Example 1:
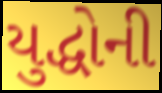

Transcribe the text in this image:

યુદ્ધોની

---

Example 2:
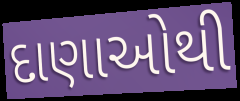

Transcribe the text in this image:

દાણાઓથી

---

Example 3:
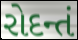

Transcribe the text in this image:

રોદન્તં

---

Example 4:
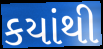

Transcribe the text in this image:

કયાંથી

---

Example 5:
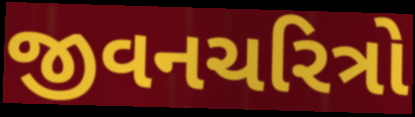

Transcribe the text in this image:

જીવનચરિત્રો